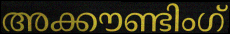
അക്കൗണ്ടിംഗ്